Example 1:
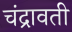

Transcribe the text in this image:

चंद्रावती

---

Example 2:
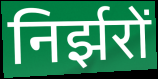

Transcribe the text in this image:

निर्झरों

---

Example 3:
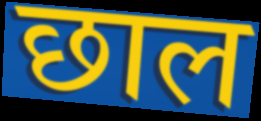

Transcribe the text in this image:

छाल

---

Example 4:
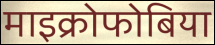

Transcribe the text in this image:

माइक्रोफोबिया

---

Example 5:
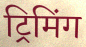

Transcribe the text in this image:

ट्रिमिंग